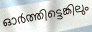
ഓർത്തിട്ടെങ്കിലും